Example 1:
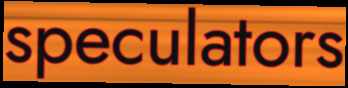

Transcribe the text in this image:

speculators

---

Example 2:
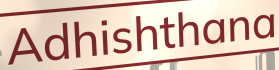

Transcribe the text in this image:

Adhishthana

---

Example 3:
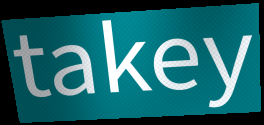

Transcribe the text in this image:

takey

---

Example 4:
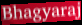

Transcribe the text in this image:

Bhagyaraj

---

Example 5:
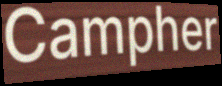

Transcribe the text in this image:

Campher